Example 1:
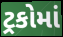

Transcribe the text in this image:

ટ્રકોમાં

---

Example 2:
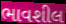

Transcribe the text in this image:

ભાવશીલ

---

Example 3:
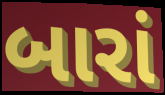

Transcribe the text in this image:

બારાં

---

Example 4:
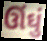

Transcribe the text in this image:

ઊંઘું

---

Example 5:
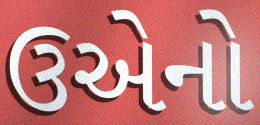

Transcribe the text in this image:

ઉએનો